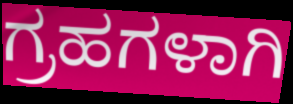
ಗ್ರಹಗಳಾಗಿ